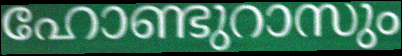
ഹോണ്ടുറാസും